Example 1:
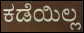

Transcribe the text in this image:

ಕಡೆಯಿಲ್ಲ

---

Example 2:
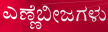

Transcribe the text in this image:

ಎಣ್ಣೆಬೀಜಗಳು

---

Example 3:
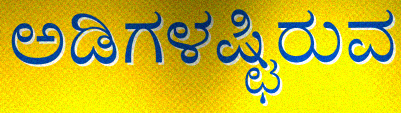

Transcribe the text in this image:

ಅಡಿಗಳಷ್ಟಿರುವ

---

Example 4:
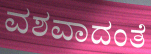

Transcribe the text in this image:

ವಶವಾದಂತೆ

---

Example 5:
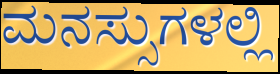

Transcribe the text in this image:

ಮನಸ್ಸುಗಳಲ್ಲಿ